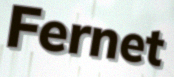
Fernet